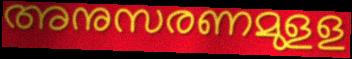
അനുസരണമുളള